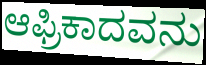
ಆಫ್ರಿಕಾದವನು